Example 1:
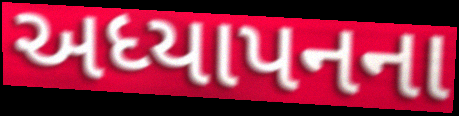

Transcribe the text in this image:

અધ્યાપનના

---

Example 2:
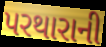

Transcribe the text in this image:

પરથારાની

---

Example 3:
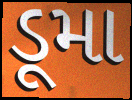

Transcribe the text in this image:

ડૂમા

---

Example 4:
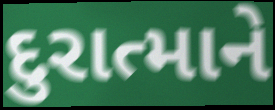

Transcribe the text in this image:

દુરાત્માને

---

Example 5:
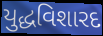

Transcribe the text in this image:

યુદ્ધવિશારદ